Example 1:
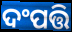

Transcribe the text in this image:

ଦଂପତ୍ତି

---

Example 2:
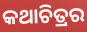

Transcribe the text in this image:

କଥାଚିତ୍ରର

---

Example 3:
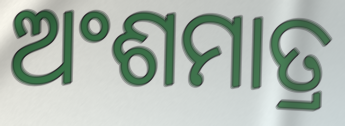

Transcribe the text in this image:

ଅଂଶମାତ୍ର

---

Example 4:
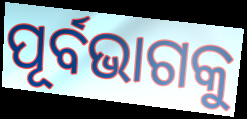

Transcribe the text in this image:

ପୂର୍ବଭାଗକୁ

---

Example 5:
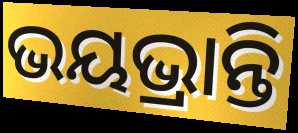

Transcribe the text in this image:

ଭୟଭ୍ରାନ୍ତି